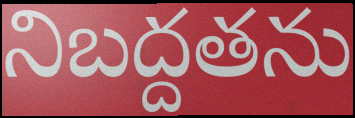
నిబద్దతను